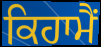
ਕਿਹਾਮੈਂ